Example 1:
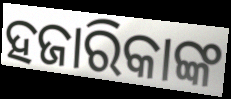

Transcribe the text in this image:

ହଜାରିକାଙ୍କ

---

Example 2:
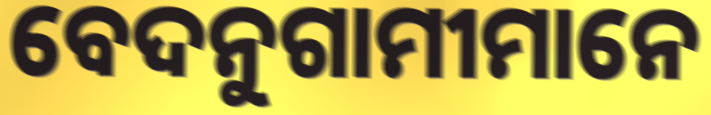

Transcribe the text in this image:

ବେଦନୁଗାମୀମାନେ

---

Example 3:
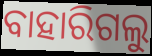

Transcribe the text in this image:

ବାହାରିଗଲୁ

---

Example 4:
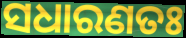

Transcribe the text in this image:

ସଧାରଣତଃ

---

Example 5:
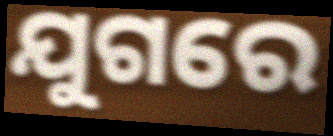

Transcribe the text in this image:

ଯୁଗରେ